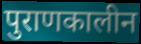
पुराणकालीन